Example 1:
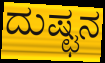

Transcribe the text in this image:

ದುಷ್ಟನ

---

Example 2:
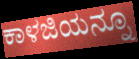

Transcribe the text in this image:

ಕಾಳಜಿಯನ್ನೂ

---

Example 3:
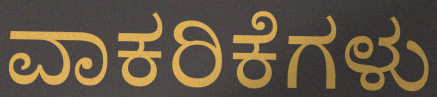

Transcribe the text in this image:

ವಾಕರಿಕೆಗಳು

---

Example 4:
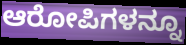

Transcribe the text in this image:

ಆರೋಪಿಗಳನ್ನೂ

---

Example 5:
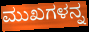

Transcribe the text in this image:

ಮುಖಗಳನ್ನ